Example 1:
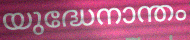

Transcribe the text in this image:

യുദ്ധേനാന്തം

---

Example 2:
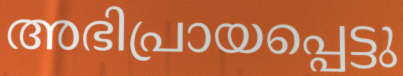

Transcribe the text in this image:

അഭിപ്രായപ്പെട്ടു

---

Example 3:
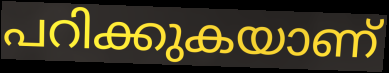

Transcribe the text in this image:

പറിക്കുകയാണ്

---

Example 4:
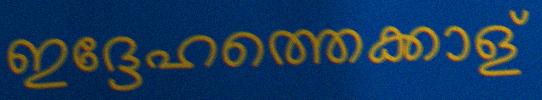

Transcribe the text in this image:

ഇദ്ദേഹത്തെക്കാള്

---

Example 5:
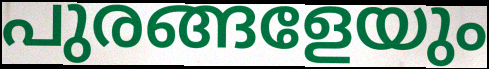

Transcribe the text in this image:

പുരങ്ങളേയും